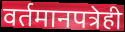
वर्तमानपत्रेही